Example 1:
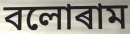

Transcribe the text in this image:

বলোৰাম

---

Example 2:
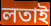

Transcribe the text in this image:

লতাই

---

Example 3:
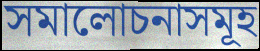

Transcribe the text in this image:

সমালোচনাসমূহ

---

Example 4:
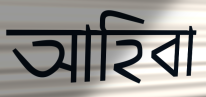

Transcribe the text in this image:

আহিবা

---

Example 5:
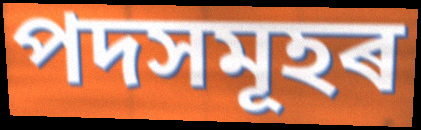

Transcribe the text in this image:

পদসমূহৰ